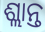
ଶ୍ଲାନ୍ତ